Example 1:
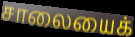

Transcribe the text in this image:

சாலையைக்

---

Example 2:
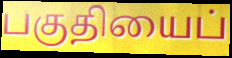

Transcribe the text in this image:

பகுதியைப்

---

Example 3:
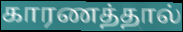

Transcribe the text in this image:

காரணத்தால்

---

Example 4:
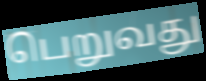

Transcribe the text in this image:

பெறுவது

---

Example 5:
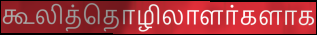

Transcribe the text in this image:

கூலித்தொழிலாளர்களாக